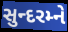
સુન્દરમ્ને